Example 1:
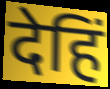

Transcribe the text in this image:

देहिं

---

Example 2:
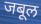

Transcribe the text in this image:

जबूल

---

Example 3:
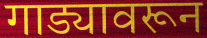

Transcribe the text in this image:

गाड्यावरून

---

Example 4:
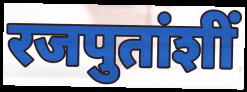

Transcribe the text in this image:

रजपुतांशीं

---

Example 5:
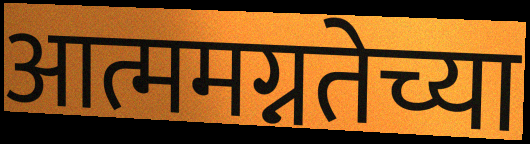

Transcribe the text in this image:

आत्ममग्नतेच्या